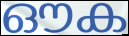
ഔക